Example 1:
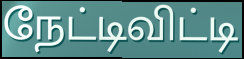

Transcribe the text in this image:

நேட்டிவிட்டி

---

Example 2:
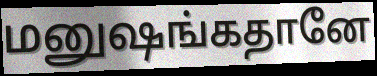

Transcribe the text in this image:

மனுஷங்கதானே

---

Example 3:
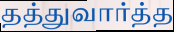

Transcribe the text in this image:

தத்துவார்த்த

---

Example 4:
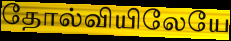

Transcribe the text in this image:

தோல்வியிலேயே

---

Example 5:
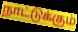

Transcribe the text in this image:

நாட்டுக்கும்